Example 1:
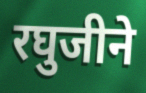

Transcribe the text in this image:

रघुजीने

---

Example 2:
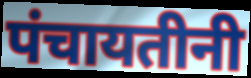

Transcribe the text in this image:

पंचायतीनी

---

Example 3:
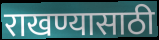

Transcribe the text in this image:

राखण्यासाठी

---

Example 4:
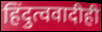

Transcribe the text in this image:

हिंदुत्ववादीही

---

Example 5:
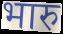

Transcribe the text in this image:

भारु